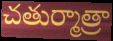
చతుర్మాత్రా